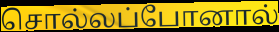
சொல்லப்போனால்